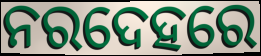
ନରଦେହରେ